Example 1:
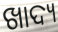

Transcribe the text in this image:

ଖାଦ୍ୟ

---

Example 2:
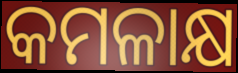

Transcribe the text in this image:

କମଳାକ୍ଷ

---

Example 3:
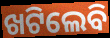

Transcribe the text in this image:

ଖଟିଲେବି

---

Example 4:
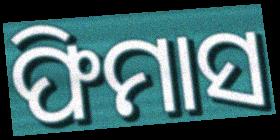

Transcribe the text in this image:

ଫିମାସ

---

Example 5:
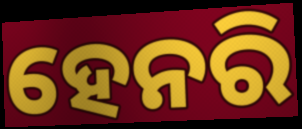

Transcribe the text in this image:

ହେନରି